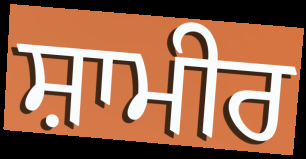
ਸ਼ਾਮੀਰ